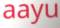
aayu